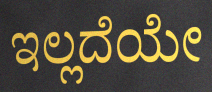
ಇಲ್ಲದೆಯೇ